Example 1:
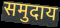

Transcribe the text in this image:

समुदाय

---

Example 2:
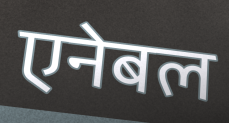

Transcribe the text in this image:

एनेबल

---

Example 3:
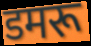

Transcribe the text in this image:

डमरू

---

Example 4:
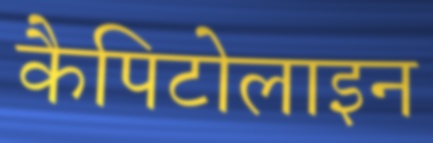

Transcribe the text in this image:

कैपिटोलाइन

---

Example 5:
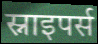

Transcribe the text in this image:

स्नाइपर्स